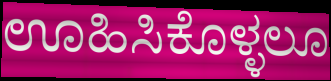
ಊಹಿಸಿಕೊಳ್ಳಲೂ